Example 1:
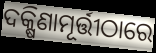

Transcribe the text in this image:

ଦକ୍ଷିଣାମୂର୍ତ୍ତୀଠାରେ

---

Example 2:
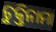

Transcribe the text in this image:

ଚୁକ୍ତିନାମା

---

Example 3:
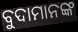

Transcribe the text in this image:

ବୁଦାମାନଙ୍କ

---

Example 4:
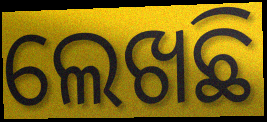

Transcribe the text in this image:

ଲେଖଛି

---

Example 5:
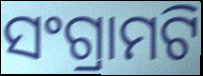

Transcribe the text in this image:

ସଂଗ୍ରାମଟି